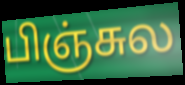
பிஞ்சுல